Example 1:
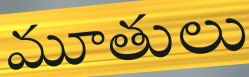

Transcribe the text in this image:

మూతులు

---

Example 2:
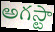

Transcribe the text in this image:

అగస్టా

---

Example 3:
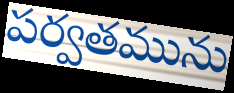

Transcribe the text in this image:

పర్వతమును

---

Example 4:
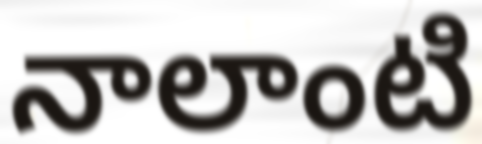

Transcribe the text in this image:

నాలాంటి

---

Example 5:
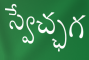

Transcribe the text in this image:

స్వేచ్ఛగ